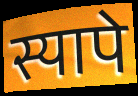
स्यापे